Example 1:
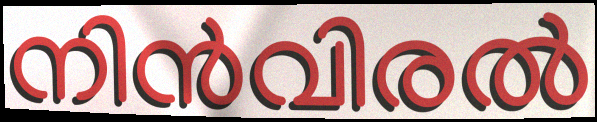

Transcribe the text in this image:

നിൻവിരൽ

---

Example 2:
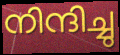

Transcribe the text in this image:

നിന്ദിച്ചു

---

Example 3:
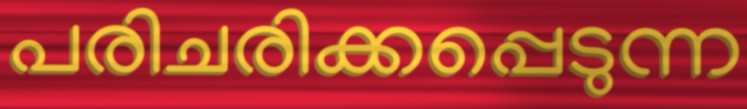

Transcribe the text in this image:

പരിചരിക്കപ്പെടുന്ന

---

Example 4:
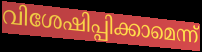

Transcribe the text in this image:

വിശേഷിപ്പിക്കാമെന്ന്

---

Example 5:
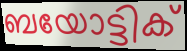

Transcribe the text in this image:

ബയോട്ടിക്